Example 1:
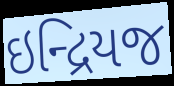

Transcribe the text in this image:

ઇન્દ્રિયજ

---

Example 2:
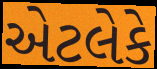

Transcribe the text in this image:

એટલેકે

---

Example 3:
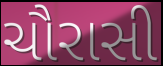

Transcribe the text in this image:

ચૌરાસી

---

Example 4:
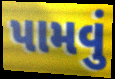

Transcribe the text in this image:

પામવું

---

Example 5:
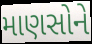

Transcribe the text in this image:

માણસોને